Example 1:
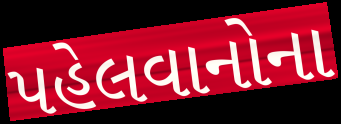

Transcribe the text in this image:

પહેલવાનોના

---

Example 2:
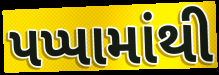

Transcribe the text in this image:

પપ્પામાંથી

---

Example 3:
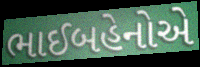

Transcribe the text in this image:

ભાઈબહેનોએ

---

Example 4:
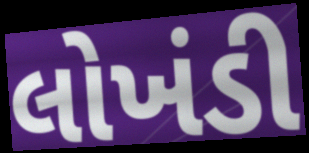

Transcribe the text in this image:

લોખંડી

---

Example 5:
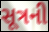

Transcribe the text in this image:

સૂત્રની